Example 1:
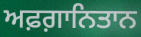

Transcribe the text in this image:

ਅਫ਼ਗ਼ਾਨਿਤਾਨ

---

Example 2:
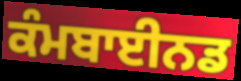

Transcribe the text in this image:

ਕੰਮਬਾਈਨਡ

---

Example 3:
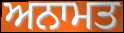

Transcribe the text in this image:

ਅਨਾਮਤ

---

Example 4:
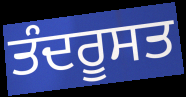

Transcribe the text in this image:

ਤੰਦਰੂਸਤ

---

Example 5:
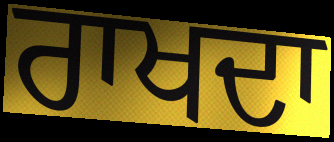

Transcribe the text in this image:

ਰਾਖਦਾ